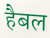
हैबल